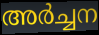
അർച്ചന